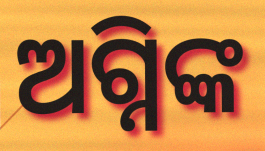
ଅଗ୍ନିଙ୍କ